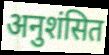
अनुशंसित